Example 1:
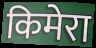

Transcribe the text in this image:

किमेरा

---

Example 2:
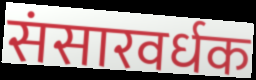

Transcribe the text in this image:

संसारवर्धक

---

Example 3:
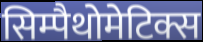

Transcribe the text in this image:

सिम्पैथोमेटिक्स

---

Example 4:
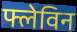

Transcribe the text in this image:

फ्लेविन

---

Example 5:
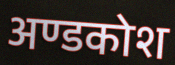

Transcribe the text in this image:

अण्डकोश